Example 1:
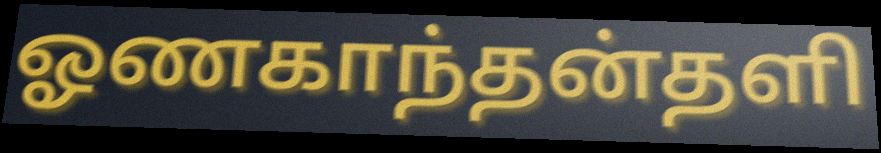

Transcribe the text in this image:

ஓணகாந்தன்தளி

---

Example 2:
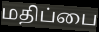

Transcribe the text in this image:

மதிப்பை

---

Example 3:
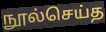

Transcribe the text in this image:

நூல்செய்த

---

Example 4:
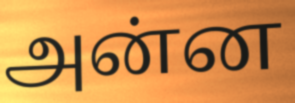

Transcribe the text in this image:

அன்ன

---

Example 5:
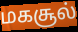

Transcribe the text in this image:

மகசூல்